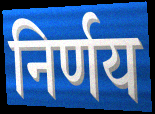
निर्णय